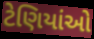
ટેણિયાંઓ